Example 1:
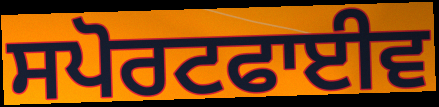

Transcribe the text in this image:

ਸਪੋਰਟਫਾਈਵ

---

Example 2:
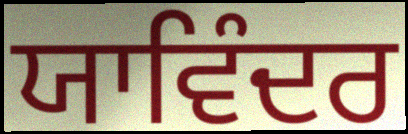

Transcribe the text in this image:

ਯਾਵਿੰਦਰ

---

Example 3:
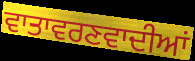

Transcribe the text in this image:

ਵਾਤਾਵਰਣਵਾਦੀਆਂ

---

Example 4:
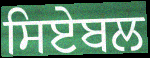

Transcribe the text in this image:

ਸਿਏਬਲ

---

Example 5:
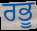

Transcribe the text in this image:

ਰਭੂ